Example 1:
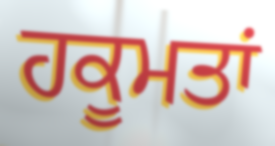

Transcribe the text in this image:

ਹਕੂਮਤਾਂ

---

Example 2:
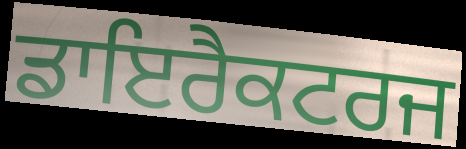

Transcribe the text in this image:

ਡਾਇਰੈਕਟਰਜ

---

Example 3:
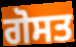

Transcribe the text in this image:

ਗੋਸਤ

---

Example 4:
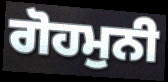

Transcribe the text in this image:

ਗੋਹਮੁਨੀ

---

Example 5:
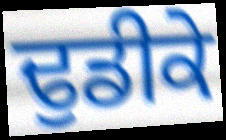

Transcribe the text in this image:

ਢੁਡੀਕੇ